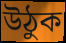
উঠুক